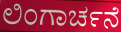
ಲಿಂಗಾರ್ಚನೆ